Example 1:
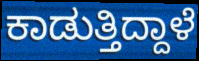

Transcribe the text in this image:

ಕಾಡುತ್ತಿದ್ದಾಳೆ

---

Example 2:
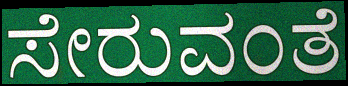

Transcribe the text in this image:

ಸೇರುವಂತೆ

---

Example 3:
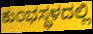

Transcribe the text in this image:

ಕುಂಭಸ್ಥಳದಲ್ಲಿ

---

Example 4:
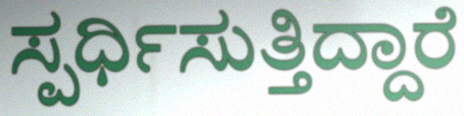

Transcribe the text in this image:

ಸ್ಪರ್ಧಿಸುತ್ತಿದ್ದಾರೆ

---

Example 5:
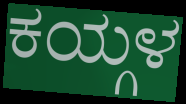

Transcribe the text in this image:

ಕಯ್ಗಳ